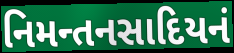
નિમન્તનસાદિયનં